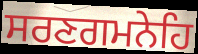
ਸਰਣਗਮਨੇਹਿ